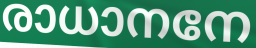
രാധാനനേ